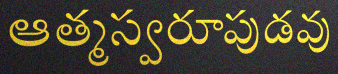
ఆత్మస్వరూపుడవు